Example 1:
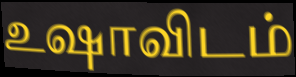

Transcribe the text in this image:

உஷாவிடம்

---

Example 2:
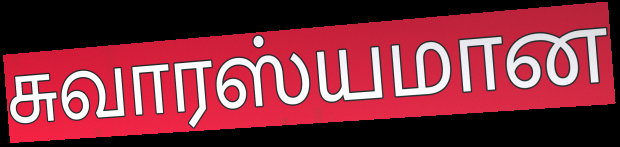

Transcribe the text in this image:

சுவாரஸ்யமான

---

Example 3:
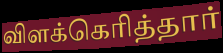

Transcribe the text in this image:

விளக்கெரித்தார்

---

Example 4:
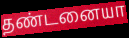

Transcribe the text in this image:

தண்டனையா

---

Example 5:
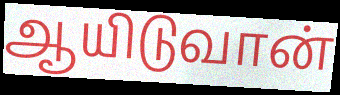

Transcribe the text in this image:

ஆயிடுவான்